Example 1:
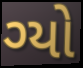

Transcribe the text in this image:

ગ્યો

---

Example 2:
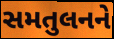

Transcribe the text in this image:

સમતુલનને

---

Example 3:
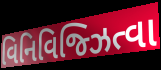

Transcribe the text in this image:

વિનિવિજ્ઝિત્વા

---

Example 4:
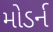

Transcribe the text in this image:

મોડર્ન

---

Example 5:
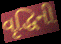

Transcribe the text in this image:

વૃદ્ધિની